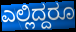
ಎಲ್ಲಿದ್ದರೂ